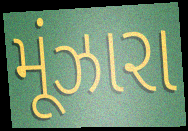
મૂંઝારા